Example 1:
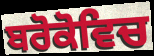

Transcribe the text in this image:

ਬਰੋਕੋਵਿਚ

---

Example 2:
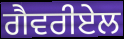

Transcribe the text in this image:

ਗੈਵਰੀਏਲ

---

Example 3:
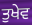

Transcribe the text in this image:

ਤੁਖੇਵ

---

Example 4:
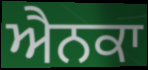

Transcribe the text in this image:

ਐਨਕਾ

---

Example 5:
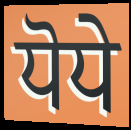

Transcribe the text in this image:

ਧੋਧੇ